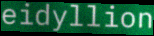
eidyllion